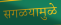
सगळयामुळे